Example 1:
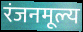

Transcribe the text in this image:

रंजनमूल्य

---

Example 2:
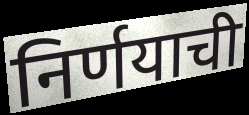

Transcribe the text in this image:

निर्णयाची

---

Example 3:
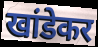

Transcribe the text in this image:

खांडेकर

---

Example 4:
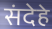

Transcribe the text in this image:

संदेहे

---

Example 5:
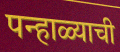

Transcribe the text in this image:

पन्हाळ्याची